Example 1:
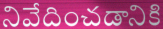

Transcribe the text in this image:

నివేదించడానికి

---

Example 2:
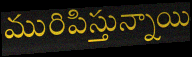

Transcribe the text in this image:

మురిపిస్తున్నాయి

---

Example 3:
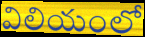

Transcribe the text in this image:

విలియంలో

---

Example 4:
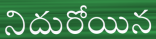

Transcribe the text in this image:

నిదురోయిన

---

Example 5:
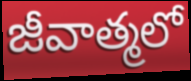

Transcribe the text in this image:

జీవాత్మలో